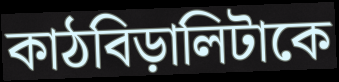
কাঠবিড়ালিটাকে